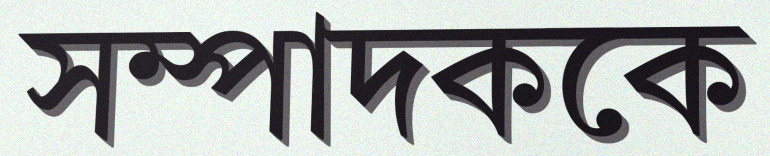
সম্পাদককে